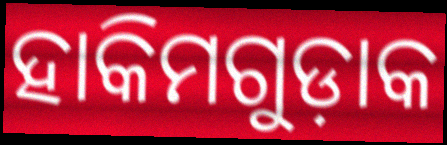
ହାକିମଗୁଡ଼ାକ